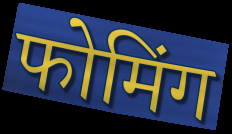
फोमिंग